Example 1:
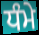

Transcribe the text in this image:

ਧੰਮੇ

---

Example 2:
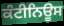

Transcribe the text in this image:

ਕੰਟੀਨਿਊਸ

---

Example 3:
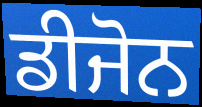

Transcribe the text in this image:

ਡੀਜੋਨ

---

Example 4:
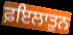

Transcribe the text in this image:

ਫ਼ਇਲਾਤੁਨ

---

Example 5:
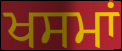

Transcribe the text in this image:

ਖਸਮਾਂ